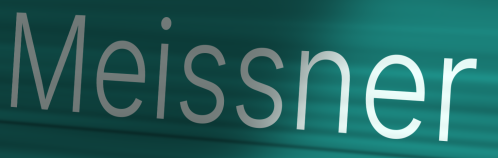
Meissner